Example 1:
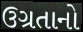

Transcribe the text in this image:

ઉગ્રતાનો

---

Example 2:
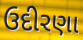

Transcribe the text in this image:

ઉદીરણા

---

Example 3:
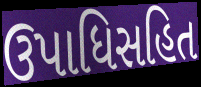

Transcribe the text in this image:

ઉપાધિસહિત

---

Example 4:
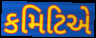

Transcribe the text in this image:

કમિટિએ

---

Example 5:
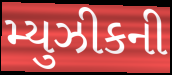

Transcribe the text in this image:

મ્યુઝીકની